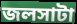
জলসাটা